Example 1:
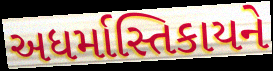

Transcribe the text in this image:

અધર્માસ્તિકાયને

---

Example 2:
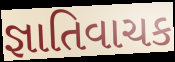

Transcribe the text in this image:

જ્ઞાતિવાચક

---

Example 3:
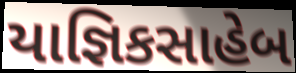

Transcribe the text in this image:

યાજ્ઞિકસાહેબ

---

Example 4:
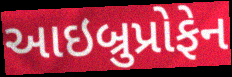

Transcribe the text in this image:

આઇબ્રુપ્રોફેન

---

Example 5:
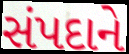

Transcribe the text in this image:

સંપદાને